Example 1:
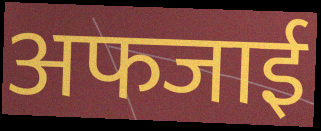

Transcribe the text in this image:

अफजाई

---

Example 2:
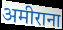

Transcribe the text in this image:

अमीराना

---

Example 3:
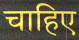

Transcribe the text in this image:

चाहिए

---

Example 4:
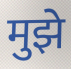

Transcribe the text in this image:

मुझे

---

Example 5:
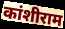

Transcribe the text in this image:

कांशीराम